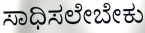
ಸಾಧಿಸಲೇಬೇಕು